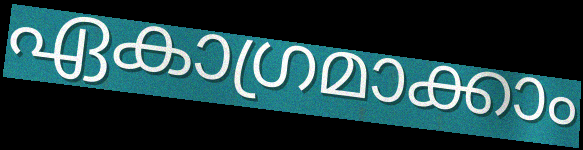
ഏകാഗ്രമാക്കാം